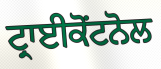
ਟ੍ਰਾਈਕੋਂਟਨੋਲ